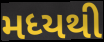
મધ્યથી